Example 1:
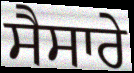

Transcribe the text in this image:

ਸੈਸਾਰੇ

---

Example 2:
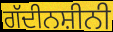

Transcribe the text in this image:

ਗੱਦੀਨਸ਼ੀਨੀ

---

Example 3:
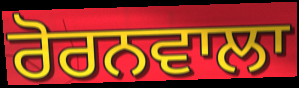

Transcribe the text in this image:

ਰੋਰਨਵਾਲਾ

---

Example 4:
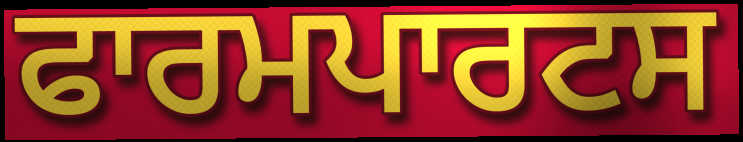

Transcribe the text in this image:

ਫਾਰਮਪਾਰਟਸ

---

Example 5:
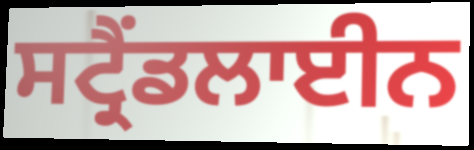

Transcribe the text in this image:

ਸਟ੍ਰੈਂਡਲਾਈਨ